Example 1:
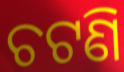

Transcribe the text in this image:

ଚଟଣି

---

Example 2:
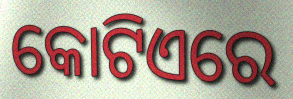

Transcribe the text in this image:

କୋଟିଏରେ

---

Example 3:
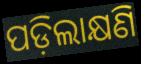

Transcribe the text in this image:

ପଡ଼ିଲାକ୍ଷଣି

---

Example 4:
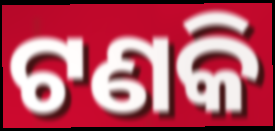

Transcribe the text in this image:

ଟଣକି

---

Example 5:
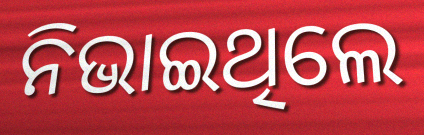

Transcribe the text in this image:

ନିଭାଇଥିଲେ